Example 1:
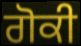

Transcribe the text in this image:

ਗੋਕੀ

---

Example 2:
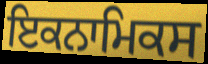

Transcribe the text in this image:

ਇਕਨਾਮਿਕਸ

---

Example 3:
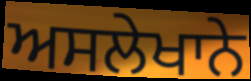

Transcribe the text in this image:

ਅਸਲੇਖਾਨੇ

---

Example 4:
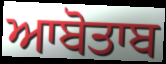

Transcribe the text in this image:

ਆਬੋਤਾਬ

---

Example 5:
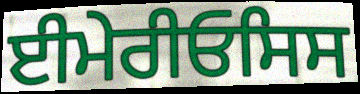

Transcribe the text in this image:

ਈਮੇਰੀਓਸਿਸ